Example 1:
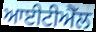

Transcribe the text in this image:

ਆਈਟੀਐੱਲ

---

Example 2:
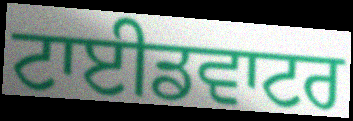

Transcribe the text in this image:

ਟਾਈਡਵਾਟਰ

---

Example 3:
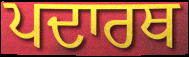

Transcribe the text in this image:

ਪਦਾਰਥ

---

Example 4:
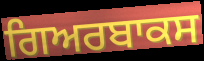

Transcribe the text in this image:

ਗਿਅਰਬਾਕਸ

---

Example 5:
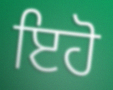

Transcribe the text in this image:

ਇਹੋ